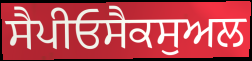
ਸੈਪੀਓਸੈਕਸੁਅਲ